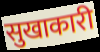
सुखाकारी